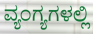
ವ್ಯಂಗ್ಯಗಳಲ್ಲಿ